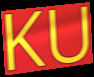
KU